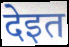
देइत